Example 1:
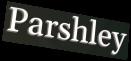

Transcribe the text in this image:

Parshley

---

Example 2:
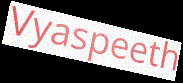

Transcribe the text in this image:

Vyaspeeth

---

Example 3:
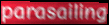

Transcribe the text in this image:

parasailing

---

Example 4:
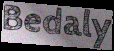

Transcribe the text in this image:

Bedaly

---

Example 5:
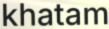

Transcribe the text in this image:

khatam